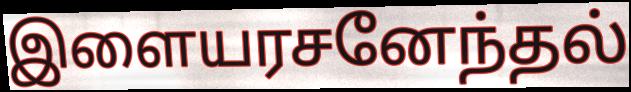
இளையரசனேந்தல்